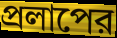
প্রলাপের